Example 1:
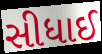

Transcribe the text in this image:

સીધાઈ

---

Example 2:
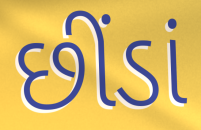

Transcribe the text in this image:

છીંડાં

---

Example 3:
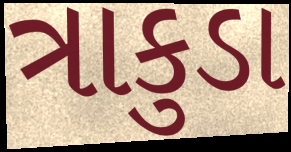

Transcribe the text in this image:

ત્રાકુડા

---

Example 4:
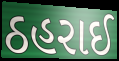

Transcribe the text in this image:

ઠહરાઈ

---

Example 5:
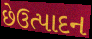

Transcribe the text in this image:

છેઉત્પાદન